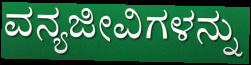
ವನ್ಯಜೀವಿಗಳನ್ನು